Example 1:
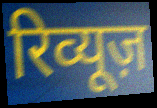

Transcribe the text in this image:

रिव्यूज़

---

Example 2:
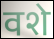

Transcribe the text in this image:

वशे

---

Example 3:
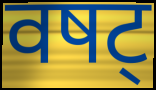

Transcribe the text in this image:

वषट्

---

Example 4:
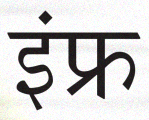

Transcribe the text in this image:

इंफ्र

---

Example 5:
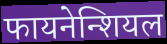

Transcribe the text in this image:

फायनेन्शियल